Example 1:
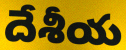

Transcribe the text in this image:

దేశీయ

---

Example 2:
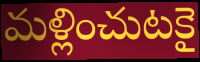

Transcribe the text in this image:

మళ్లించుటకై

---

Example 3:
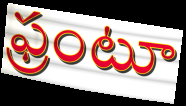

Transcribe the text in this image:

ఫ్రంటూ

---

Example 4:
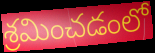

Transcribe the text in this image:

శ్రమించడంలో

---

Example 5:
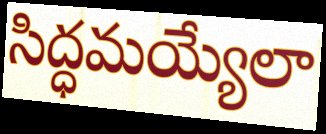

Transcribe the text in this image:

సిద్ధమయ్యేలా